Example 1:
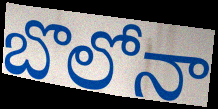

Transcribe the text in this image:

బొలోనా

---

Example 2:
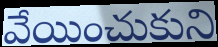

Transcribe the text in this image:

వేయించుకుని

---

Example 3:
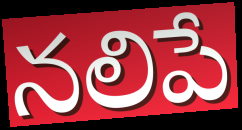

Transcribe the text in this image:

నలిపే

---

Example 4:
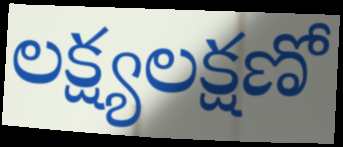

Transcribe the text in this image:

లక్ష్యలక్షణో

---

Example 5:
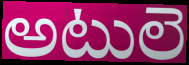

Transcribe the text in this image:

అటులె